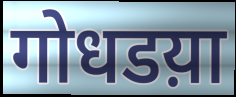
गोधडय़ा